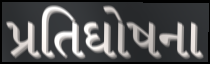
પ્રતિઘોષના